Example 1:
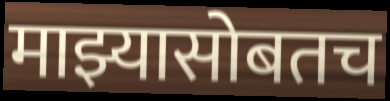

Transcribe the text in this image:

माझ्यासोबतच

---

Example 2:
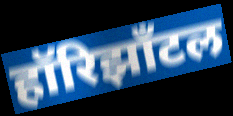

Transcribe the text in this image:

हॉरिझाँटल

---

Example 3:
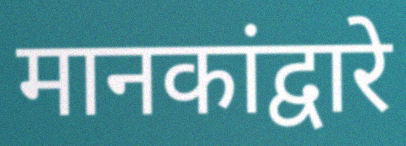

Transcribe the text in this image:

मानकांद्वारे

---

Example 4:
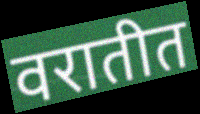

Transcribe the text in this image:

वरातीत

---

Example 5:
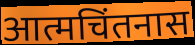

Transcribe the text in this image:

आत्मचिंतनास